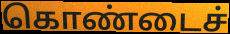
கொண்டைச்